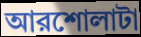
আরশোলাটা